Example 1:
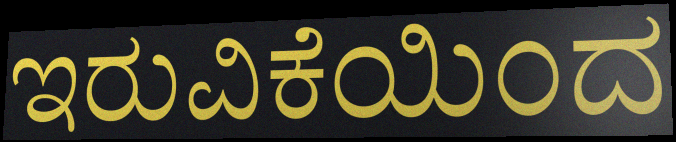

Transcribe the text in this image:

ಇರುವಿಕೆಯಿಂದ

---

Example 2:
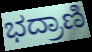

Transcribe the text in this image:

ಭದ್ರಾಣಿ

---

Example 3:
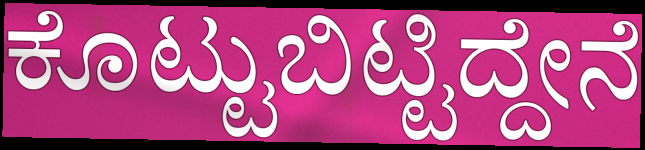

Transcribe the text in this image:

ಕೊಟ್ಟುಬಿಟ್ಟಿದ್ದೇನೆ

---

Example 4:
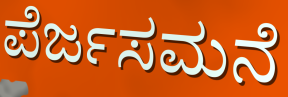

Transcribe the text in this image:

ಪೆರ್ಜಸಮನೆ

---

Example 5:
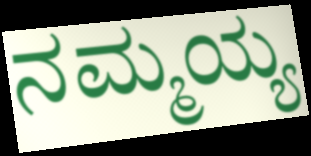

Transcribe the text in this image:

ನಮ್ಮಯ್ಯ